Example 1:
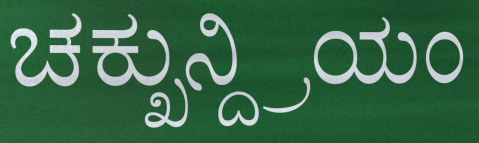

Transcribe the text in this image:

ಚಕ್ಖುನ್ದ್ರಿಯಂ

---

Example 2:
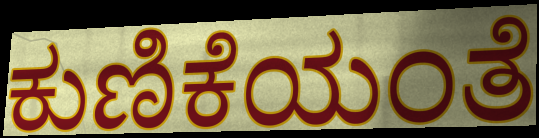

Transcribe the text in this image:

ಕುಣಿಕೆಯಂತೆ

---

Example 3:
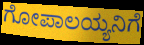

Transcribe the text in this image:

ಗೋಪಾಲಯ್ಯನಿಗೆ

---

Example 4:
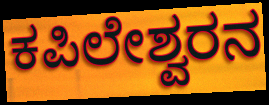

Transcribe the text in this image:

ಕಪಿಲೇಶ್ವರನ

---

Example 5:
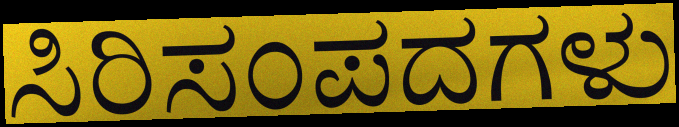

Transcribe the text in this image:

ಸಿರಿಸಂಪದಗಳು